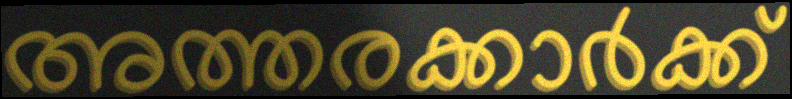
അത്തരക്കാർക്ക്